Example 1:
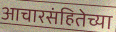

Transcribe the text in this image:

आचारसंहितेच्या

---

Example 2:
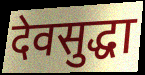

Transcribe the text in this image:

देवसुद्धा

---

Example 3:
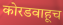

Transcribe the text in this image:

कोरडवाहूच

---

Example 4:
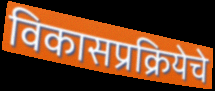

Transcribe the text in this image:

विकासप्रक्रियेचे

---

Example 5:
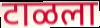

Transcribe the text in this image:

टाळला